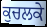
ਕੁਚਲਕੇ